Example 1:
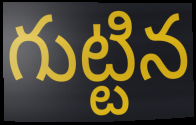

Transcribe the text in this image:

గుట్టిన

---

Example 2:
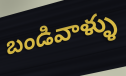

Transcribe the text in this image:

బండివాళ్ళు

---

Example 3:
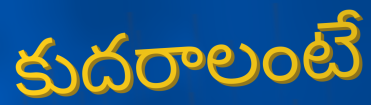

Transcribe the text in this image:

కుదరాలంటే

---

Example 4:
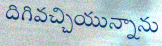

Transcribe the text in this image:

దిగివచ్చియున్నాను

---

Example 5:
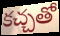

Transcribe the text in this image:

కచ్చతో